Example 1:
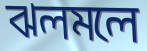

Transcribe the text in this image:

ঝলমলে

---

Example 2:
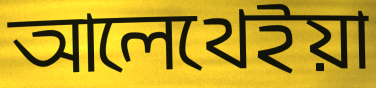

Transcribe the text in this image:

আলেথেইয়া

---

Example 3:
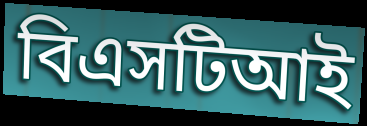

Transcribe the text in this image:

বিএসটিআই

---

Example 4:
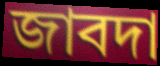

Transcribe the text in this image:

জাবদা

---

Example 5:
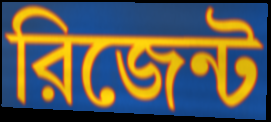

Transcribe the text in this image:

রিজেন্ট